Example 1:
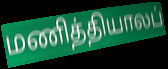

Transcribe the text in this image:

மணித்தியாலப்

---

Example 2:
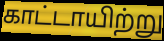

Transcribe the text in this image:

காட்டாயிற்று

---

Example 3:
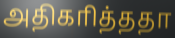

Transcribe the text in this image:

அதிகரித்ததா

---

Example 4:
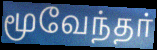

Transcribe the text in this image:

மூவேந்தர்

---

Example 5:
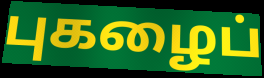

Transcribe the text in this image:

புகழைப்